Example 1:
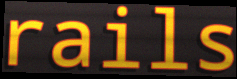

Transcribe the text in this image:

rails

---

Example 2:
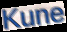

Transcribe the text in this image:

Kune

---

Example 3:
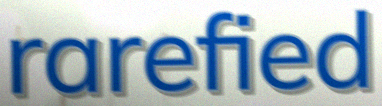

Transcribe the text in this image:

rarefied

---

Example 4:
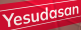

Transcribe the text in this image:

Yesudasan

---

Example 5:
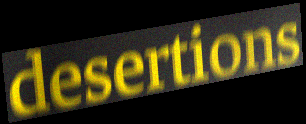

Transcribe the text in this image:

desertions